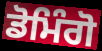
ਡੋਮਿੰਗੋ